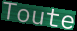
Toute